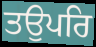
ਤਉਪਰਿ